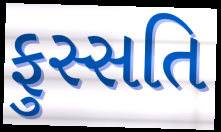
ફુસ્સતિ